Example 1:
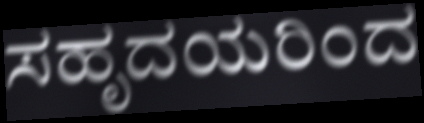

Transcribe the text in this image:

ಸಹೃದಯರಿಂದ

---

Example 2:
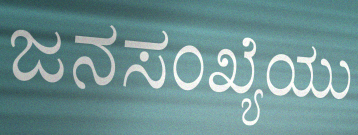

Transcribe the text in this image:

ಜನಸಂಖ್ಯೆಯು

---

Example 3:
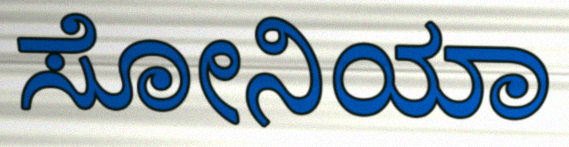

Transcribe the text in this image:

ಸೋನಿಯಾ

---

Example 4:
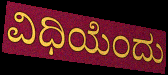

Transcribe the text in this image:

ವಿಧಿಯೆಂದು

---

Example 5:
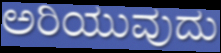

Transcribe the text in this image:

ಅರಿಯುವುದು